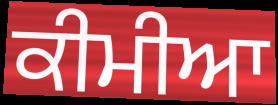
ਕੀਮੀਆ